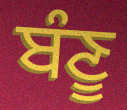
ਬੰਣੂ